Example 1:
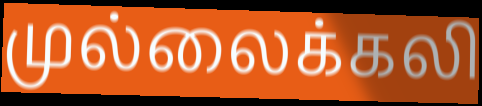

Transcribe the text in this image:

முல்லைக்கலி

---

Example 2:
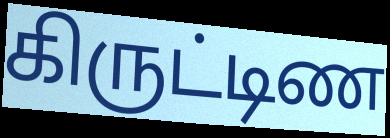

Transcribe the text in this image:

கிருட்டிண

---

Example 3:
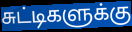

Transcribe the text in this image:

சுட்டிகளுக்கு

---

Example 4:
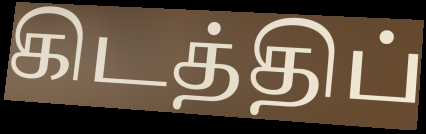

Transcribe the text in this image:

கிடத்திப்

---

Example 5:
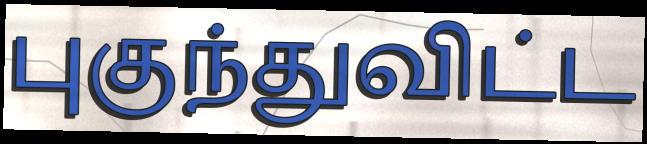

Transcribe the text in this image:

புகுந்துவிட்ட